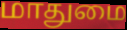
மாதுமை